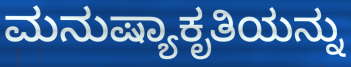
ಮನುಷ್ಯಾಕೃತಿಯನ್ನು